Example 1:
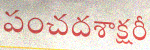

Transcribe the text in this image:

పంచదశాక్షరీ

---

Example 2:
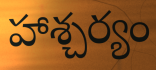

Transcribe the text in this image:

హాశ్చర్యం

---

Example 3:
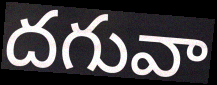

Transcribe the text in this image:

దగువా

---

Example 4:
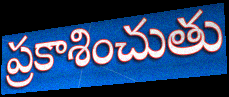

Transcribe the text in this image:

ప్రకాశించుతు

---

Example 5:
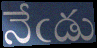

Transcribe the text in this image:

నేఁడు